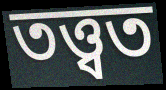
তত্ত্বত